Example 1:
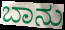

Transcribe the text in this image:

ಬಾನು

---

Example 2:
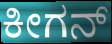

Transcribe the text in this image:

ಕೀಗನ್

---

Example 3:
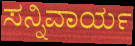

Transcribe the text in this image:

ಸನ್ನಿವಾರ್ಯ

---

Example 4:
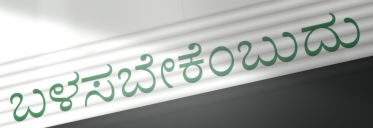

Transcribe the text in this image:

ಬಳಸಬೇಕೆಂಬುದು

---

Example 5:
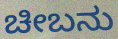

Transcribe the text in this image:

ಚೀಬನು